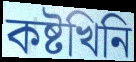
কষ্টখিনি